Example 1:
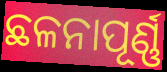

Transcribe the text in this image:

ଛଳନାପୂର୍ଣ୍ଣ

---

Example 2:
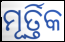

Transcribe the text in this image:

ମୂର୍ତ୍ତିକ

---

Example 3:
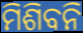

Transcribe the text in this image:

ମିଶିବନି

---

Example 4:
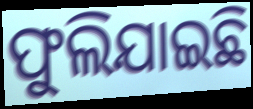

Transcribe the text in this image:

ଫୁଲିଯାଇଛି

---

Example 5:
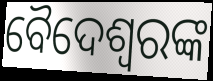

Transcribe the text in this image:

ବୈଦେଶ୍ୱରଙ୍କ